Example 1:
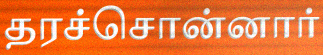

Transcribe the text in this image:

தரச்சொன்னார்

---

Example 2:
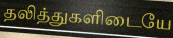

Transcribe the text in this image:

தலித்துகளிடையே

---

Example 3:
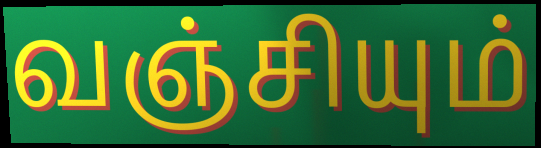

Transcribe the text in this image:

வஞ்சியும்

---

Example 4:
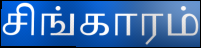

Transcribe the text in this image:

சிங்காரம்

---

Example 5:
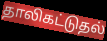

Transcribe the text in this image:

தாலிகட்டுதல்